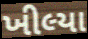
ખીલ્યા